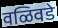
वळिवडे